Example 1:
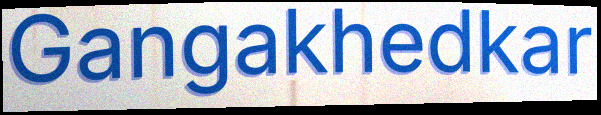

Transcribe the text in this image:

Gangakhedkar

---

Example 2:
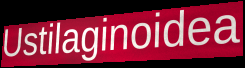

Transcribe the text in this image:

Ustilaginoidea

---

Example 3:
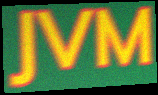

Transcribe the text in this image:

JVM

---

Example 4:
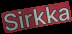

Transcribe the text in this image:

Sirkka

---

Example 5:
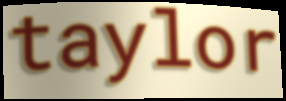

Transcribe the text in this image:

taylor